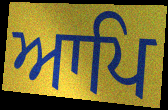
ਆਪਿ